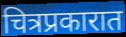
चित्रप्रकारात